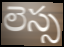
లెస్స